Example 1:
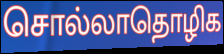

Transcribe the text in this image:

சொல்லாதொழிக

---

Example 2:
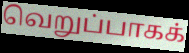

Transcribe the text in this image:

வெறுப்பாகக்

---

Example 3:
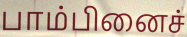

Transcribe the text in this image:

பாம்பினைச்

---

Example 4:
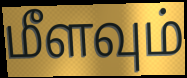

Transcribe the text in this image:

மீளவும்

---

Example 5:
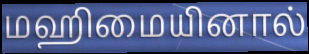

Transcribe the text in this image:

மஹிமையினால்